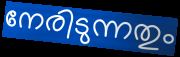
നേരിടുന്നതും